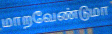
மாறவேண்டுமா